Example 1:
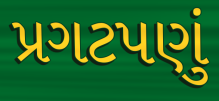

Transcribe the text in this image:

પ્રગટપણું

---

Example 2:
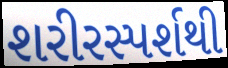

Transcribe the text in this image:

શરીરસ્પર્શથી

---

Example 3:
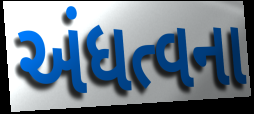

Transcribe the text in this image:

અંધત્વના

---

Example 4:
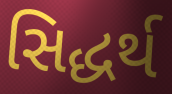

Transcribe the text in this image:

સિદ્ધર્થ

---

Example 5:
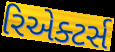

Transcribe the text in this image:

રિએક્ટર્સ